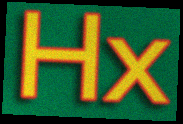
Hx